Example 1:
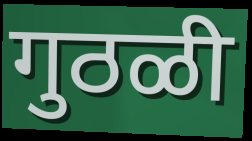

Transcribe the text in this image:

गुठळी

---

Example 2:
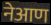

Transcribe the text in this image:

नेआण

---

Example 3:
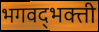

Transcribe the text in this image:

भगवद्भक्ती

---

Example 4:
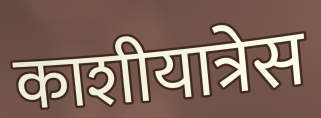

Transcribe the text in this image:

काशीयात्रेस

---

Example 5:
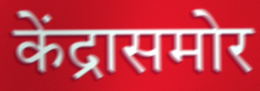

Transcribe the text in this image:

केंद्रासमोर